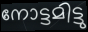
നോട്ടമിട്ടു